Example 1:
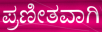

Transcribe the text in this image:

ಪ್ರಣೀತವಾಗಿ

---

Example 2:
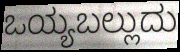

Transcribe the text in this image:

ಒಯ್ಯಬಲ್ಲುದು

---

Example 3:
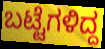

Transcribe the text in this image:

ಬಟ್ಟೆಗಳಿದ್ದ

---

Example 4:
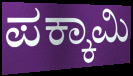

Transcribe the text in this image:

ಪಕ್ಕಾಮಿ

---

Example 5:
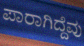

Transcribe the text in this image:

ಪಾರಾಗಿದ್ದೆವು